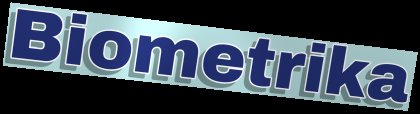
Biometrika